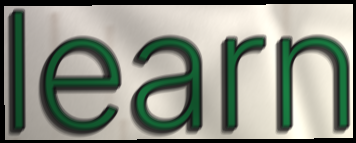
learn